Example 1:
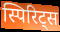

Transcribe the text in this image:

स्पिरिट्स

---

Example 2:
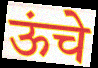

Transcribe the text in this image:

ऊंचे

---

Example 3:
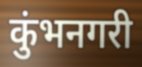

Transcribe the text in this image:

कुंभनगरी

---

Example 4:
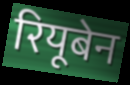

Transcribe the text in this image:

रियूबेन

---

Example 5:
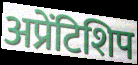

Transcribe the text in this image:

अप्रेंटिशिप